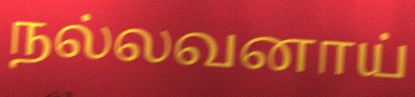
நல்லவனாய்